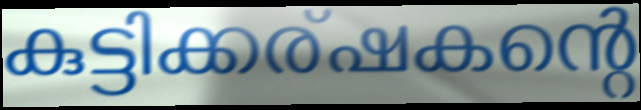
കുട്ടിക്കര്ഷകന്റെ